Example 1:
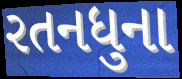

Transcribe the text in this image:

રતનધુના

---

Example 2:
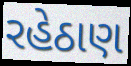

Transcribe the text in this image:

રહેઠાણ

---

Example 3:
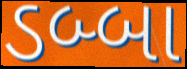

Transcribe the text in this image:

ડબ્બા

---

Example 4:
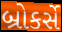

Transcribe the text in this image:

બ્રોકર્સે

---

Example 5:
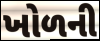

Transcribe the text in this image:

ખોળની